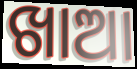
ଖାଆ